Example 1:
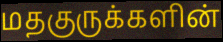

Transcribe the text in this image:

மதகுருக்களின்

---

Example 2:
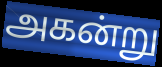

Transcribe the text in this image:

அகன்று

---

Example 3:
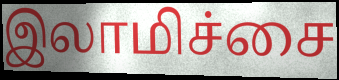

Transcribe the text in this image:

இலாமிச்சை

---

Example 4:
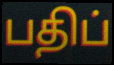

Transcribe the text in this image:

பதிப்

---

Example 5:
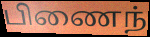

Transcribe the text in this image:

பிணைந்